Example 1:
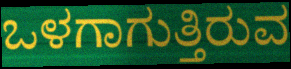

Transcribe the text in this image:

ಒಳಗಾಗುತ್ತಿರುವ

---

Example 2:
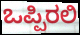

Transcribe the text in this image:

ಒಪ್ಪಿರಲಿ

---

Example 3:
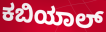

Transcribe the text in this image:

ಕಬಿಯಾಲ್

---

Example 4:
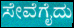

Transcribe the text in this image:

ಸೇವೆಗೈದು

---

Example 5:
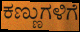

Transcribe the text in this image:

ಕಣ್ಣುಗಳಿಗೆ